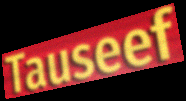
Tauseef